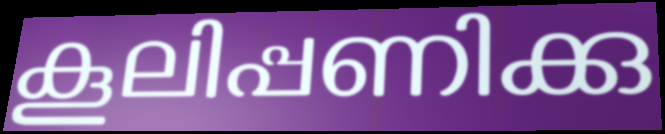
കൂലിപ്പണിക്കു